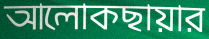
আলোকছায়ার